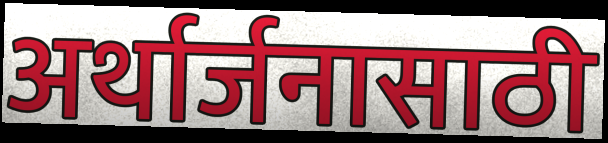
अर्थार्जनासाठी